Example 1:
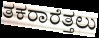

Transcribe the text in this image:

ತಕರಾರೆತ್ತಲು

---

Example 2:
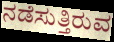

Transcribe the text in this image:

ನಡೆಸುತ್ತಿರುವ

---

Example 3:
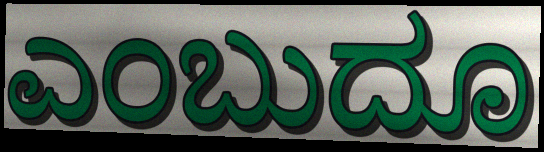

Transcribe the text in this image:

ಎಂಬುದೂ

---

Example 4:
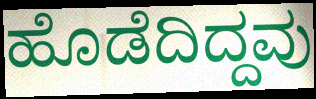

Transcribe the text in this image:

ಹೊಡೆದಿದ್ದವು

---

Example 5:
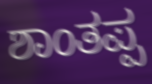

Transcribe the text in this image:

ಶಾಂತಪ್ಪ